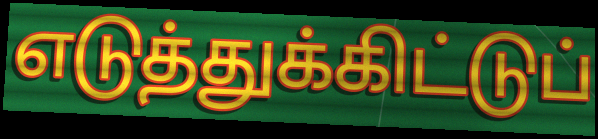
எடுத்துக்கிட்டுப்